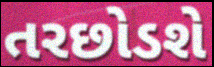
તરછોડશે